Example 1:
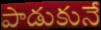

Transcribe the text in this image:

పాడుకునే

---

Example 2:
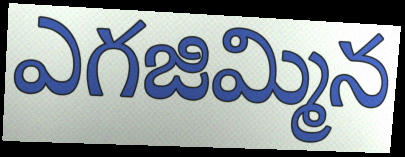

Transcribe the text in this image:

ఎగజిమ్మిన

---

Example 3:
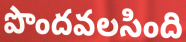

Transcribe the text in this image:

పొందవలసింది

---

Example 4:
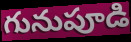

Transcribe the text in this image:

గునుపూడి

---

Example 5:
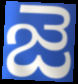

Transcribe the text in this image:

జె